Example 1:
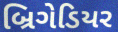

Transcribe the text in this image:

બ્રિગેડિયર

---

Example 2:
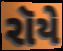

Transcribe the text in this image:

રૉયે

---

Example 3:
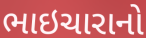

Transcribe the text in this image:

ભાઇચારાનો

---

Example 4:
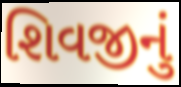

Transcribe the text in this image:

શિવજીનું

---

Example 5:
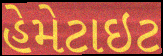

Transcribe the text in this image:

હેમેટાઇટ